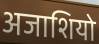
अजाशियो